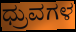
ಧ್ರುವಗಳ